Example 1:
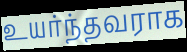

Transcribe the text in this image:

உயர்ந்தவராக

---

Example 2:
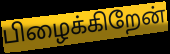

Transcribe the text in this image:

பிழைக்கிறேன்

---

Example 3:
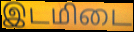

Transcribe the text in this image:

இடமிடை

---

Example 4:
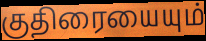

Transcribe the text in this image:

குதிரையையும்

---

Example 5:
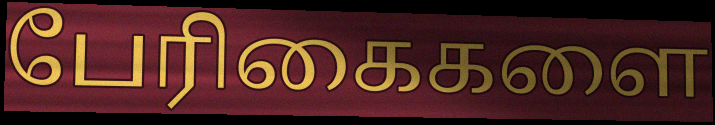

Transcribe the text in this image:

பேரிகைகளை